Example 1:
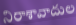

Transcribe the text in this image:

నిరాశావాదుల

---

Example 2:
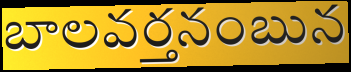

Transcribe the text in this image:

బాలవర్తనంబున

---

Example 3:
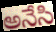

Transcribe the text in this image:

అనేసి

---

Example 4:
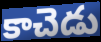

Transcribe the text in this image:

కాచెడు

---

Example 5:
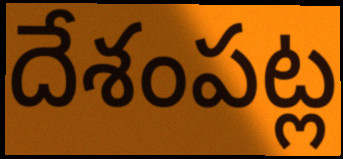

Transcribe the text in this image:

దేశంపట్ల